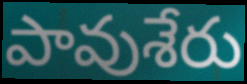
పావుశేరు